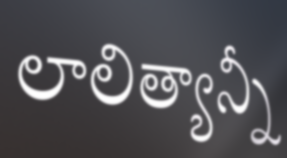
లాలిత్యాన్నీ